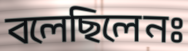
বলেছিলেনঃ